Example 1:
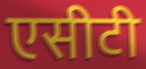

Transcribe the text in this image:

एसीटी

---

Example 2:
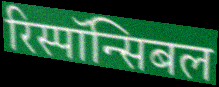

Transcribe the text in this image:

रिस्पॉन्सिबल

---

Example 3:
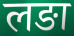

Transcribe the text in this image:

लङा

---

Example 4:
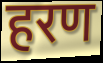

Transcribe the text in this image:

हरण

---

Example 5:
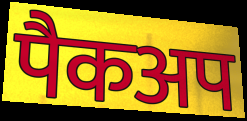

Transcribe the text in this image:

पैकअप